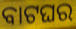
ବାଟଘର